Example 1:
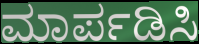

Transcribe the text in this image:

ಮಾರ್ಪಡಿಸಿ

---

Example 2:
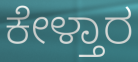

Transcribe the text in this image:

ಕೇಳ್ತಾರ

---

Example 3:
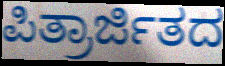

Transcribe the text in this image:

ಪಿತ್ರಾರ್ಜಿತದ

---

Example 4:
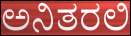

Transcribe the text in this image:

ಅನಿತರಲಿ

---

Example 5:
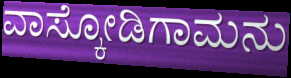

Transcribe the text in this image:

ವಾಸ್ಕೋಡಿಗಾಮನು